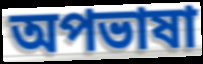
অপভাষা